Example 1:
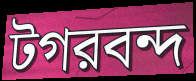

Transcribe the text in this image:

টগরবন্দ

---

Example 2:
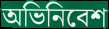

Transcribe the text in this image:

অভিনিবেশ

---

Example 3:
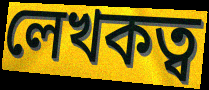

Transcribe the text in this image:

লেখকত্ব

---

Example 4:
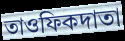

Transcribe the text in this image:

তাওফিকদাতা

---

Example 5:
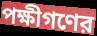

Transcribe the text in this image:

পক্ষীগণের